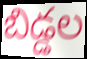
బిడ్డల